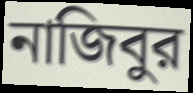
নাজিবুর